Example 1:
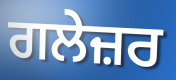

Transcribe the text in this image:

ਗਲੇਜ਼ਰ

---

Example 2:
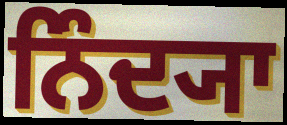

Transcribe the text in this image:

ਨਿੰਦ੍ਯਾ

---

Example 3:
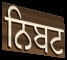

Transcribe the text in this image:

ਨਿਬਟ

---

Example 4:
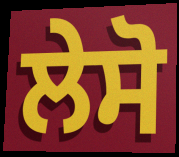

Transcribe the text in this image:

ਲੇਸੋ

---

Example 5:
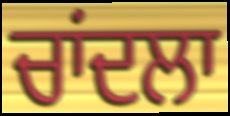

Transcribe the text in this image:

ਚਾਂਦਲਾ